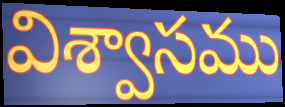
విశ్వాసము